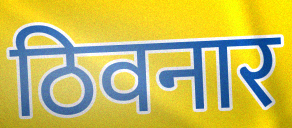
ठिवनार